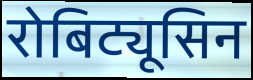
रोबिट्यूसिन